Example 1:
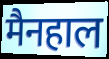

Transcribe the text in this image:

मैनहाल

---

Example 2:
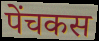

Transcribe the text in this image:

पेंचकस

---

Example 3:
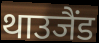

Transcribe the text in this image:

थाउजैंड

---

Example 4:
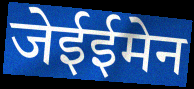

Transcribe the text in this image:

जेईईमेन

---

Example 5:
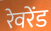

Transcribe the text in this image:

रेवरेंड